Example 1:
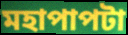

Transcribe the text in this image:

মহাপাপটা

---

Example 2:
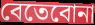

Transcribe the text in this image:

বেতেবোনা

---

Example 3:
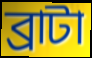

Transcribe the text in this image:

ব্রাটা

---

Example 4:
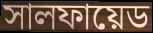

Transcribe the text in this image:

সালফায়েড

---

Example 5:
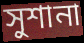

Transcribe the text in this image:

সুশানা